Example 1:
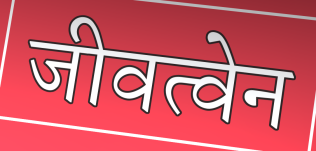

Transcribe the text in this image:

जीवत्वेन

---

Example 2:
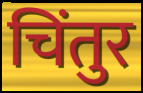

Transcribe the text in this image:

चिंतुर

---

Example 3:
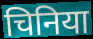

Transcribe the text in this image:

चिनिया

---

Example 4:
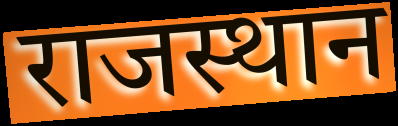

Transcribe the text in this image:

राजस्‍थान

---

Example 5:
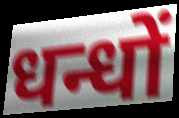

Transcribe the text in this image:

धन्धों